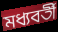
মধ্যবর্তী